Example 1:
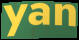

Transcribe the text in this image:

yan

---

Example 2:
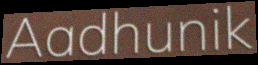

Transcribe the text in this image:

Aadhunik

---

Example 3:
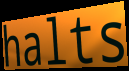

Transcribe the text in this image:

halts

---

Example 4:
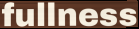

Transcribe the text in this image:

fullness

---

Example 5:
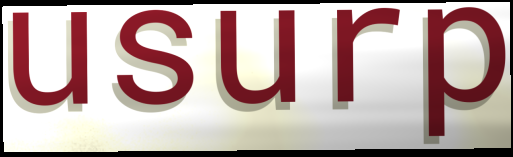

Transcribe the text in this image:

usurp